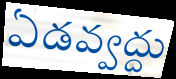
ఏడవ్వద్దు